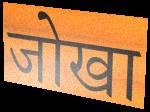
जोखा